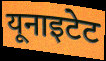
यूनाइटेट